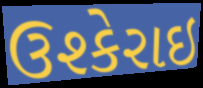
ઉશ્કેરાઇ